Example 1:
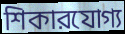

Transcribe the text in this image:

শিকারযোগ্য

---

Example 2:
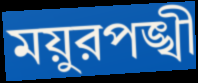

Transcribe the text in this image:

ময়ুরপঙ্খী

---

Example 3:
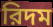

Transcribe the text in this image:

রিদম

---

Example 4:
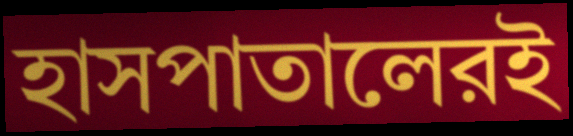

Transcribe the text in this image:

হাসপাতালেরই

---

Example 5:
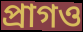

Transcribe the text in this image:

প্রাগও